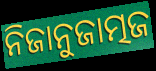
ନିଜାନୁଜାତ୍ମଜ